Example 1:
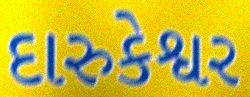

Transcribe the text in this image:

દારુકેશ્વર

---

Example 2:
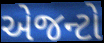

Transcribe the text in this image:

એજન્ટો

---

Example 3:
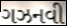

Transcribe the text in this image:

ગઝનવી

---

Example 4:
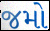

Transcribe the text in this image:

જમો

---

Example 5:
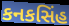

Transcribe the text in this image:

કનકસિંહ